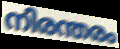
നിരന്തരം